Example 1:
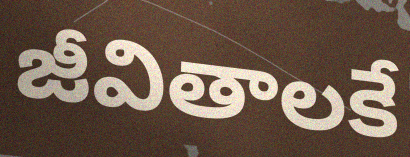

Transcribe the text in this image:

జీవితాలకే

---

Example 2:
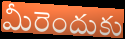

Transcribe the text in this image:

మీరెందుకు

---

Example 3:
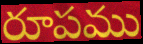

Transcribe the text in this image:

రూపము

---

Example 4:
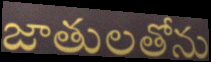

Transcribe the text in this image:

జాతులతోను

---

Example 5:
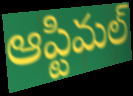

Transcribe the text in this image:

ఆప్టిమల్